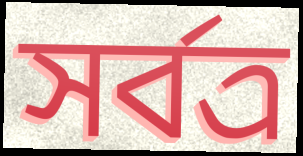
সর্বত্র